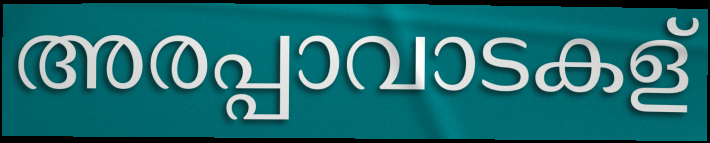
അരപ്പാവാടകള്